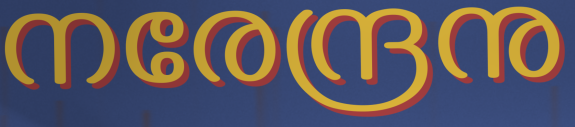
നരേന്ദ്രനു